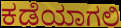
ಕಡೆಯಾಗಲಿ